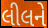
લીલને